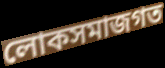
লোকসমাজগত